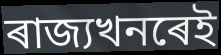
ৰাজ্যখনৰেই